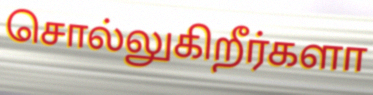
சொல்லுகிறீர்களா